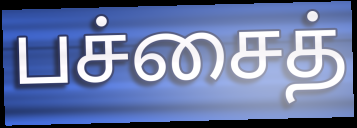
பச்சைத்